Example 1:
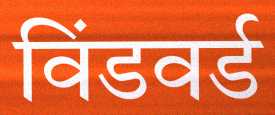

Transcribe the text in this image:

विंडवर्ड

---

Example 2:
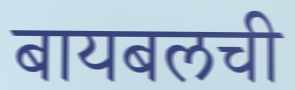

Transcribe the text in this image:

बायबलची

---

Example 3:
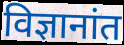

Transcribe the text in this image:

विज्ञानांत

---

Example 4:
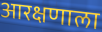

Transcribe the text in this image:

आरक्षणाला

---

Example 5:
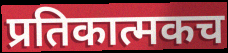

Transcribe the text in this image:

प्रतिकात्मकच